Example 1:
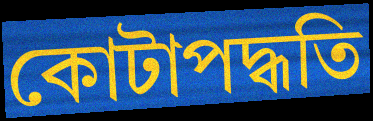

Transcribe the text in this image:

কোটাপদ্ধতি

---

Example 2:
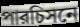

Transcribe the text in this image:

পারচিসনে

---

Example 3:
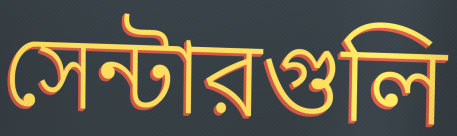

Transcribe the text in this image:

সেন্টারগুলি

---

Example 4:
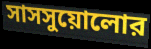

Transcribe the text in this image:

সাসসুয়োলোর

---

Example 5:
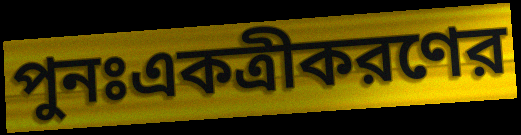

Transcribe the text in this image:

পুনঃএকত্রীকরণের